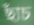
ছাঁচ